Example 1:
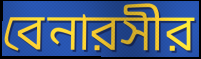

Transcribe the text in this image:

বেনারসীর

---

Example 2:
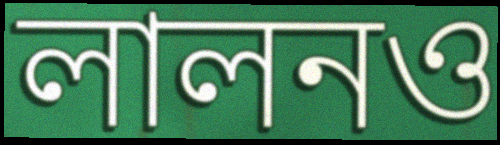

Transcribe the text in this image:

লালনও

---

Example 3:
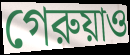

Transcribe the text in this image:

গেরুয়াও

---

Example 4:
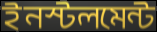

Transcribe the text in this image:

ইনস্টলমেন্ট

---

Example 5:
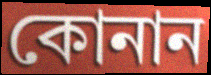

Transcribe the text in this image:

কোনান